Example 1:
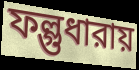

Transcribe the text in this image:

ফল্গুধারায়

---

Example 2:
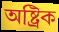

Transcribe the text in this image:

অষ্ট্রিক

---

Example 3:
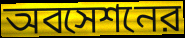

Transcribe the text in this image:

অবসেশনের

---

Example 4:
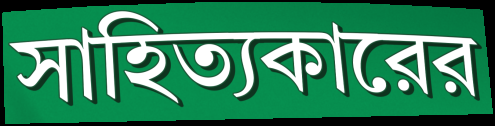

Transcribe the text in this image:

সাহিত্যকারের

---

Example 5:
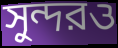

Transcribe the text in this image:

সুন্দরও